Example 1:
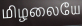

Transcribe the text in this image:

மிழலையே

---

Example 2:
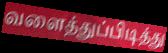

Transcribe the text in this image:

வளைத்துப்பிடித்து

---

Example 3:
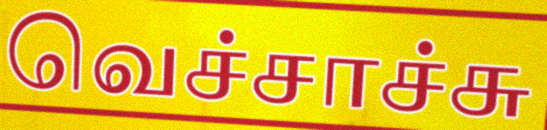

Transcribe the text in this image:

வெச்சாச்சு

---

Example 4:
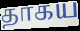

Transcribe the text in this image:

தாகய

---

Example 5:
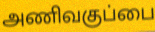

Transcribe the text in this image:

அணிவகுப்பை